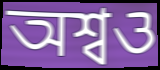
অশ্বও